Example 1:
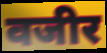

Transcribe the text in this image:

वजीर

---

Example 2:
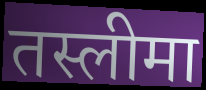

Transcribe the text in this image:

तस्लीमा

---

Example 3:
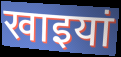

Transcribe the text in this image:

खाइयां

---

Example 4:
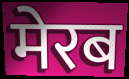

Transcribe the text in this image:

मेरब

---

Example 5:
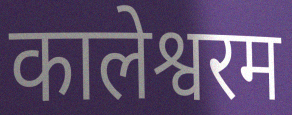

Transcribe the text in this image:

कालेश्वरम